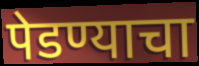
पेडण्याचा